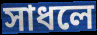
সাধলে